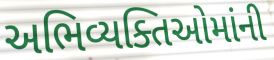
અભિવ્યક્તિઓમાંની